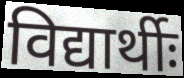
विद्यार्थीः